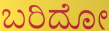
ಬರಿದೋ